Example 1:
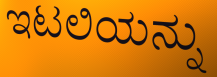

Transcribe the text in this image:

ಇಟಲಿಯನ್ನು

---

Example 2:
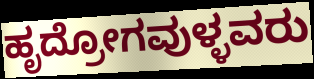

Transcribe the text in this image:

ಹೃದ್ರೋಗವುಳ್ಳವರು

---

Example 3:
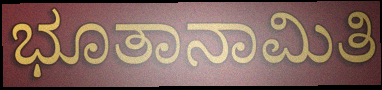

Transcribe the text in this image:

ಭೂತಾನಾಮಿತಿ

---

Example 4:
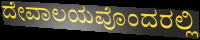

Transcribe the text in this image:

ದೇವಾಲಯವೊಂದರಲ್ಲಿ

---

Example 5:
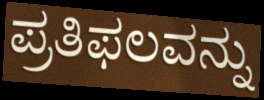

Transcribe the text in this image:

ಪ್ರತಿಫಲವನ್ನು